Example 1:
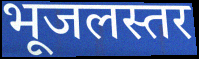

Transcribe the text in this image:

भूजलस्तर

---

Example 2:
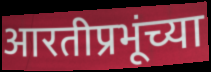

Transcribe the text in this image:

आरतीप्रभूंच्या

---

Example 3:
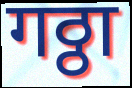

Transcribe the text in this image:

गठ्ठा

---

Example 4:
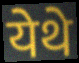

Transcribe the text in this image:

येथे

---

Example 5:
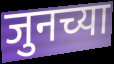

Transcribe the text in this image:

जुनच्या